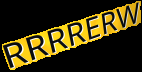
RRRRERW